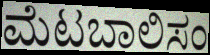
ಮೆಟಬಾಲಿಸಂ